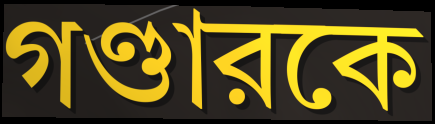
গণ্ডারকে